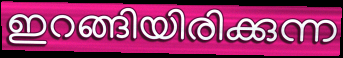
ഇറങ്ങിയിരിക്കുന്ന